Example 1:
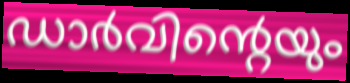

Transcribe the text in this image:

ഡാർവിന്റെയും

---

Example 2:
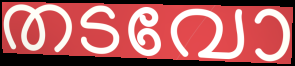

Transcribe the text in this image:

തടവോ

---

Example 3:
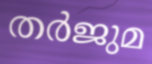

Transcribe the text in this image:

തർജുമ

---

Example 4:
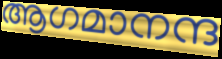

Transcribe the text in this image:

ആഗമാനന്ദ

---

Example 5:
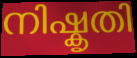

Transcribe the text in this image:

നിഷ്കൃതി